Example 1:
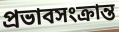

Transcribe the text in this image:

প্রভাবসংক্রান্ত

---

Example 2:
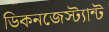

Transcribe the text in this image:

ডিকনজেস্ট্যান্ট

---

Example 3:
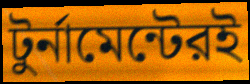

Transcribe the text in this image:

টুর্নামেন্টেরই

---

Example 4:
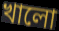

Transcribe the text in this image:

খালো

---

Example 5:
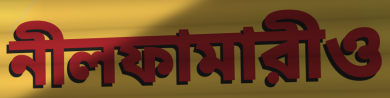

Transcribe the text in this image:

নীলফামারীও